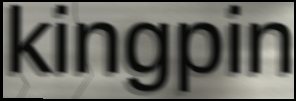
kingpin